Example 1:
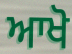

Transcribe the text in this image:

ਆਖੋ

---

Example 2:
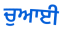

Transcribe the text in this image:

ਚੁਆਈ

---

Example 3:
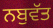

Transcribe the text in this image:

ਨਬੁਵੱਤ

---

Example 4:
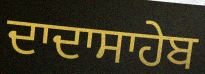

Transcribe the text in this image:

ਦਾਦਾਸਾਹੇਬ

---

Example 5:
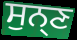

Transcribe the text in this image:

ਸੁਨ੍ਣ